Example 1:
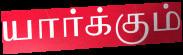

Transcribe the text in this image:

யார்க்கும்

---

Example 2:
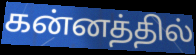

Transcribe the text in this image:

கன்னத்தில்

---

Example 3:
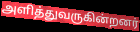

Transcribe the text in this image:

அளித்துவருகின்றனர்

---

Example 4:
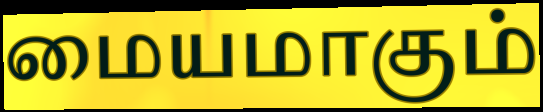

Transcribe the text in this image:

மையமாகும்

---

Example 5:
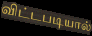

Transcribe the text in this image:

விட்டபடியால்